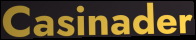
Casinader